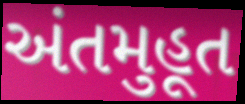
અંતમુહૂત